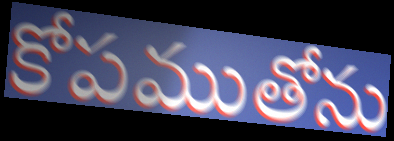
కోపముతోను